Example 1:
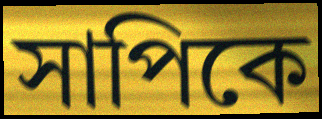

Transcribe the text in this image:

সাপিকে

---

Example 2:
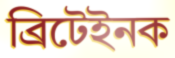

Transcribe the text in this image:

ব্ৰিটেইনক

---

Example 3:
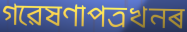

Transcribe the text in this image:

গৱেষণাপত্ৰখনৰ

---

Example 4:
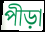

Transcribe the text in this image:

পীড়া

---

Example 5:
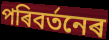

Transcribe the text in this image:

পৰিবৰ্তনেৰ